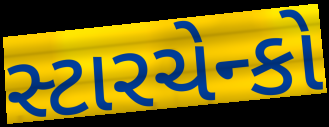
સ્ટારચેન્કો